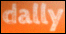
dally